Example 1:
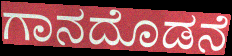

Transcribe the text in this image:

ಗಾನದೊಡನೆ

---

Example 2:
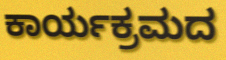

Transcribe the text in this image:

ಕಾರ್ಯಕ್ರಮದ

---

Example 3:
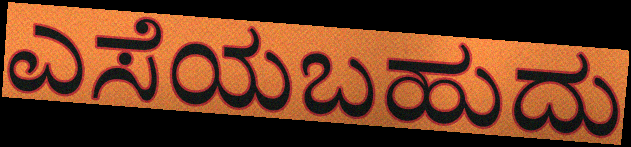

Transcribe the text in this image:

ಎಸೆಯಬಹುದು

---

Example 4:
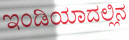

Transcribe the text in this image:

ಇಂಡಿಯಾದಲ್ಲಿನ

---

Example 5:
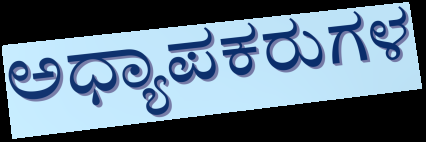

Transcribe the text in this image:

ಅಧ್ಯಾಪಕರುಗಳ